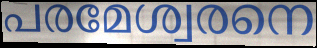
പരമേശ്വരനെ